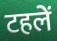
टहलें